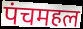
पंचमहल